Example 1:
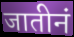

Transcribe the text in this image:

जातीनं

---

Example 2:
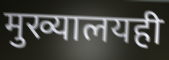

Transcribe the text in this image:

मुख्यालयही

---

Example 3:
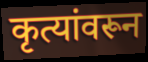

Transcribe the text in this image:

कृत्यांवरून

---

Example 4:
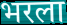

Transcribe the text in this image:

भरला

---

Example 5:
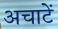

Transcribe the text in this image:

अचाटें